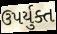
ઉપર્યુક્ત